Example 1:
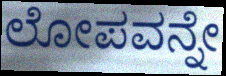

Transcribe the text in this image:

ಲೋಪವನ್ನೇ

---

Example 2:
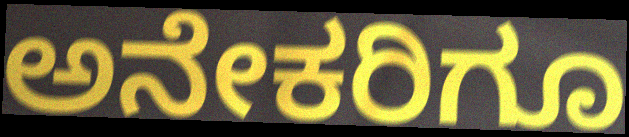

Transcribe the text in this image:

ಅನೇಕರಿಗೂ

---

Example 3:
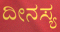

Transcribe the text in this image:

ದೀನಸ್ಯ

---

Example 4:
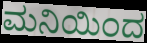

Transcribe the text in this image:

ಮನಿಯಿಂದ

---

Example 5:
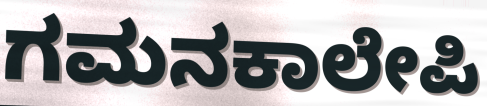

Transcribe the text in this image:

ಗಮನಕಾಲೇಪಿ